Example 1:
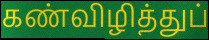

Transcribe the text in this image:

கண்விழித்துப்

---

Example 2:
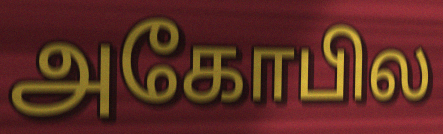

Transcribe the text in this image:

அகோபில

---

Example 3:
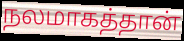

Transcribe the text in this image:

நலமாகத்தான்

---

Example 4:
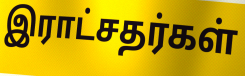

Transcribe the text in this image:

இராட்சதர்கள்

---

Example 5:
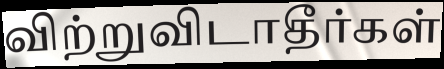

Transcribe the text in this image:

விற்றுவிடாதீர்கள்